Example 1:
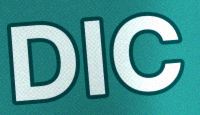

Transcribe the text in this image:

DIC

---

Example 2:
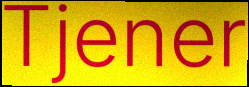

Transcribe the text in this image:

Tjener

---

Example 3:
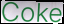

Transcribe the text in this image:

Coke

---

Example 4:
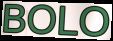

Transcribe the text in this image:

BOLO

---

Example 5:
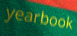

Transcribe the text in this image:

yearbook